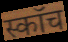
स्कॉच